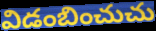
విడంబించుచు